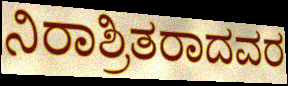
ನಿರಾಶ್ರಿತರಾದವರ